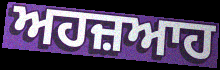
ਅਹਜ਼ਆਹ